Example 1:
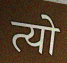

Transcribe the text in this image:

त्यो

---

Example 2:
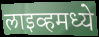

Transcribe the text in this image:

लाइव्हमध्ये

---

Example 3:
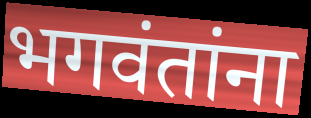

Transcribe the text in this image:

भगवंतांना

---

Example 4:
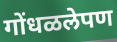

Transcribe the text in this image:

गोंधळलेपण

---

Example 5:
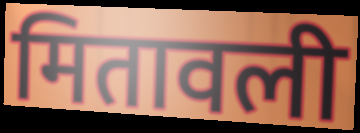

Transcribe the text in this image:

मितावली